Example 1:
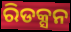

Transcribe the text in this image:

ରିଡକ୍ସନ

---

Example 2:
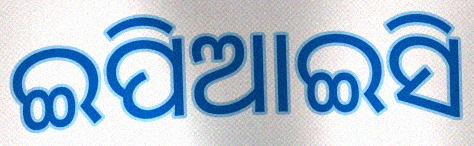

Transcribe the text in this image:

ଇପିଆଇସି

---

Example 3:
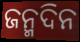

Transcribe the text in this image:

ଜନ୍ମଦିନ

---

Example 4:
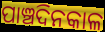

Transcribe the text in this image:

ପାଞ୍ଚଦିନକାଳ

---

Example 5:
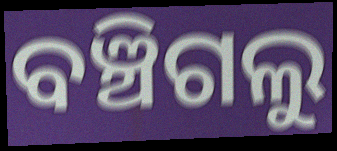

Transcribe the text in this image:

ବଞ୍ଚିଗଲୁ